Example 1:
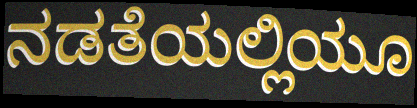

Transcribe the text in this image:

ನಡತೆಯಲ್ಲಿಯೂ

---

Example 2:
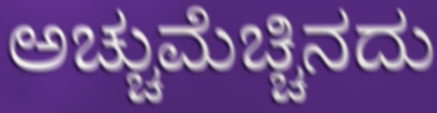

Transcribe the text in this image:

ಅಚ್ಚುಮೆಚ್ಚಿನದು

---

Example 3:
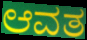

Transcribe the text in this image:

ಆವತ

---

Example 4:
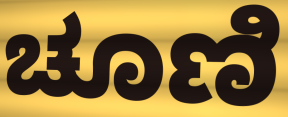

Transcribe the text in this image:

ಚೂಣಿ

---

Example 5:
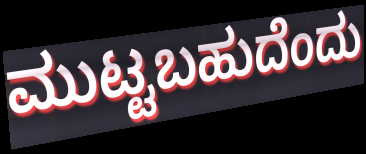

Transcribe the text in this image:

ಮುಟ್ಟಬಹುದೆಂದು